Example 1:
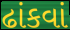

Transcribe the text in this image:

ઢાંકવાં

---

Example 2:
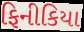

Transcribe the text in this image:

ફિનીકિયા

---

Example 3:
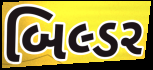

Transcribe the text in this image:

બિલ્ડર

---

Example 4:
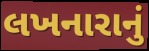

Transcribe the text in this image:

લખનારાનું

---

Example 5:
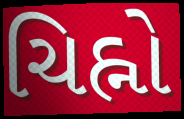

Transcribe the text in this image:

ચિહ્નો